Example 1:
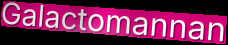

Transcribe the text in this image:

Galactomannan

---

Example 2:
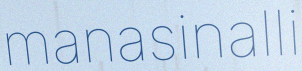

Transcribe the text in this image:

manasinalli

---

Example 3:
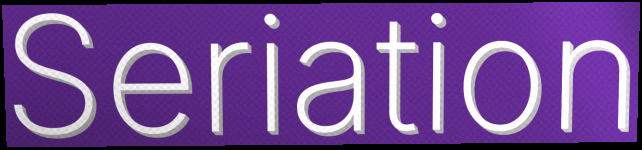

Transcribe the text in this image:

Seriation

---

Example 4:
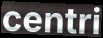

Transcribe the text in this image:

centri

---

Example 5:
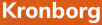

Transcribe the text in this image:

Kronborg